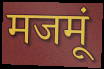
मजमूं